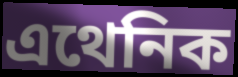
এথেনিক